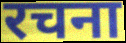
रचना